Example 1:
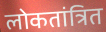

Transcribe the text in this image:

लोकतांत्रित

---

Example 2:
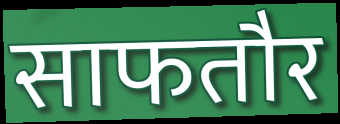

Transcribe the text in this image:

साफतौर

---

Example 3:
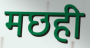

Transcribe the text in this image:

मछही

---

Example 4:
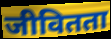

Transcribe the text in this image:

जीवितता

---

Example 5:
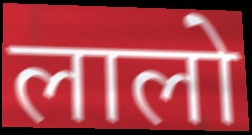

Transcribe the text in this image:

लालो